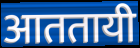
आततायी